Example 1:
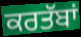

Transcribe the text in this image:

ਕਰਤੱਬਾਂ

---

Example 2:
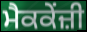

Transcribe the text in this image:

ਮੈਕਕੇਂਜ਼ੀ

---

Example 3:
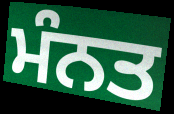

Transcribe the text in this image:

ਮੰਨਤ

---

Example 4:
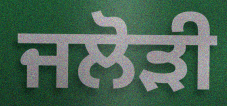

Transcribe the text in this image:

ਜਲੋੜੀ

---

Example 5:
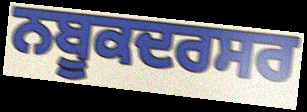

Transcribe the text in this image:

ਨਬੂਕਦਰਸਰ